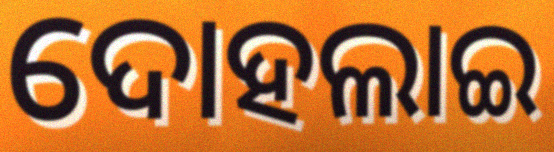
ଦୋହଲାଇ